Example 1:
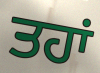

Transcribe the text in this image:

ਤਹਾਂ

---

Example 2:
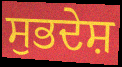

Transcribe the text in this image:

ਸੁਭਦੇਸ਼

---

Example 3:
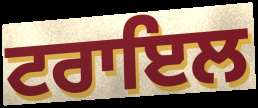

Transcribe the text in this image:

ਟਰਾਇਲ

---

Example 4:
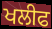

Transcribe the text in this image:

ਖਲੀਫ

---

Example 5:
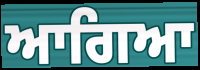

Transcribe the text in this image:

ਆਗਿਆ